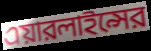
এয়ারলাইন্সের